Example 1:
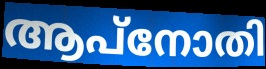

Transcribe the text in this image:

ആപ്നോതി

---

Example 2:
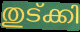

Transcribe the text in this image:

തുട്ക്കി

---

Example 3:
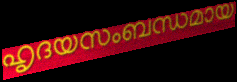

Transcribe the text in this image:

ഹൃദയസംബന്ധമായ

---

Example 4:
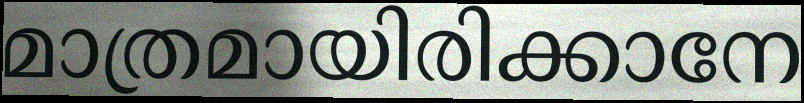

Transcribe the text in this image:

മാത്രമായിരിക്കാനേ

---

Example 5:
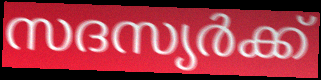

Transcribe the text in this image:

സദസ്യർക്ക്